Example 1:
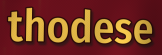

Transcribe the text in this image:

thodese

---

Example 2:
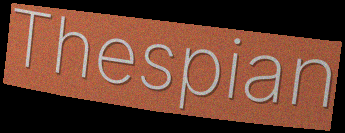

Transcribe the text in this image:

Thespian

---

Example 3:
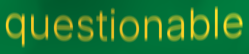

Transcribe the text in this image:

questionable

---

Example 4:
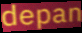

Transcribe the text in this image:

depan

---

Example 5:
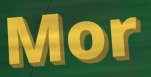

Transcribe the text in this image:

Mor